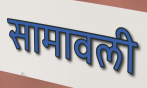
सामावली